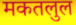
मकतलुल